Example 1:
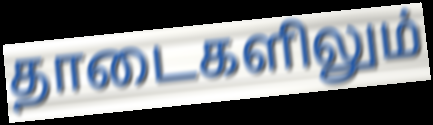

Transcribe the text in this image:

தாடைகளிலும்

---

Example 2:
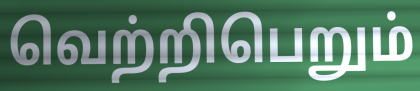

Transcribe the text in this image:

வெற்றிபெறும்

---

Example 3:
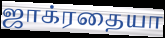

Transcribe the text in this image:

ஜாக்ரதையா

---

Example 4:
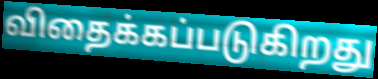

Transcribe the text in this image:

விதைக்கப்படுகிறது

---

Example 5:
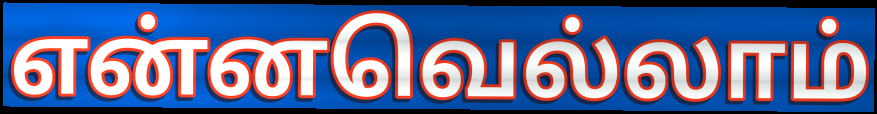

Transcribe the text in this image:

என்னவெல்லாம்